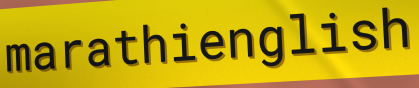
marathienglish